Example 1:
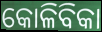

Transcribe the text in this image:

କୋଳିବିକା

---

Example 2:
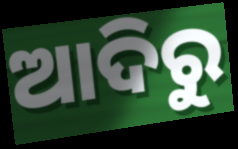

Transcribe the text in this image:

ଆଦିରୁ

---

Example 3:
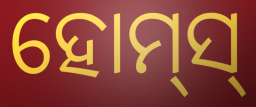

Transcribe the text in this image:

ହୋମ୍‌ସ୍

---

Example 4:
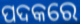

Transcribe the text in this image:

ପଦକରେ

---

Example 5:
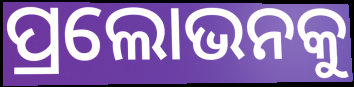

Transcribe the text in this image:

ପ୍ରଲୋଭନକୁ